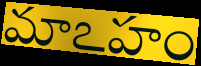
మాఽహం